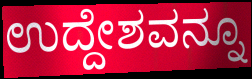
ಉದ್ದೇಶವನ್ನೂ